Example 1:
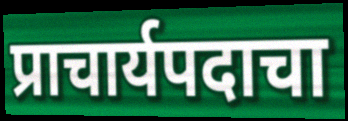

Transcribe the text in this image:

प्राचार्यपदाचा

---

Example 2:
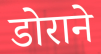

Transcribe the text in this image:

डोराने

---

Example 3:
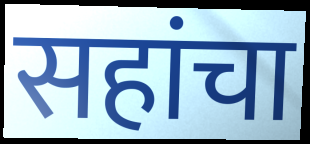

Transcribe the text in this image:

सहांचा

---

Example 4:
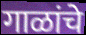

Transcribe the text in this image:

गाळांचे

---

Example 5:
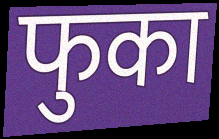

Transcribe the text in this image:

फुका